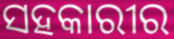
ସହକାରୀର